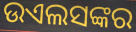
ଉଏଲସଙ୍କର